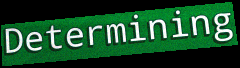
Determining